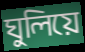
ঘুলিয়ে